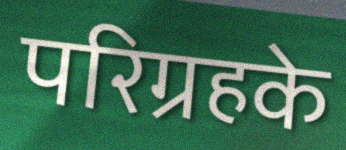
परिग्रहके